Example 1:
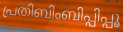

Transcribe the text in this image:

പ്രതിബിംബിപ്പിപ്പൂ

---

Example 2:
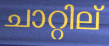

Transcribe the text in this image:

ചാറ്റില്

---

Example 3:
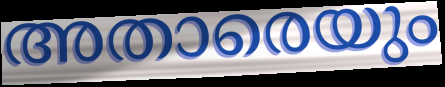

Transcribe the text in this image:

അതാരെയും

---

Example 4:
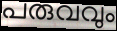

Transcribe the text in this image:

പരുവവും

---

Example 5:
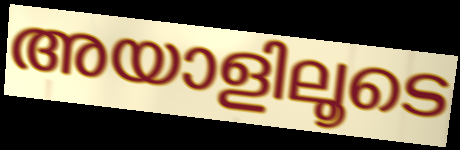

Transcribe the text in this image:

അയാളിലൂടെ